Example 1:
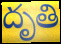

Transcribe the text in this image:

దృతి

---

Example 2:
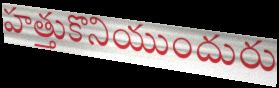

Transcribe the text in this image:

హత్తుకొనియుందురు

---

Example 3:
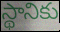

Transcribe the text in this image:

స్థానికు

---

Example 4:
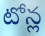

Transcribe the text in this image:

టోన్ల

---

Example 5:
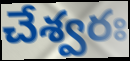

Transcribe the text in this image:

చేశ్వరః